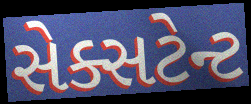
સેક્સટેન્ટ